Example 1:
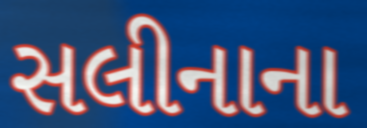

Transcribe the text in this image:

સલીનાના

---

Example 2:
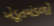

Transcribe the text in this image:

ખેડૂતમંડળો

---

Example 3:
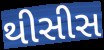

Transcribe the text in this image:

થીસીસ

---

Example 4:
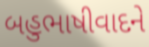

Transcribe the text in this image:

બહુભાષીવાદને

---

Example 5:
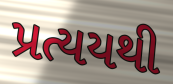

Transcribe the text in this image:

પ્રત્યયથી